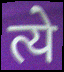
त्ये